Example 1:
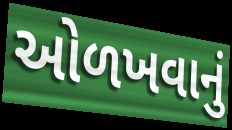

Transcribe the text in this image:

ઓળખવાનું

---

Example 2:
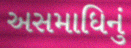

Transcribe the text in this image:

અસમાધિનું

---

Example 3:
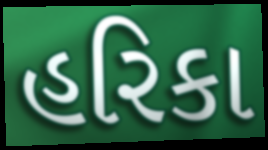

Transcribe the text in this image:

હરિકા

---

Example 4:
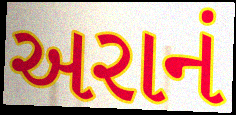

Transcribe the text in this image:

અરાનં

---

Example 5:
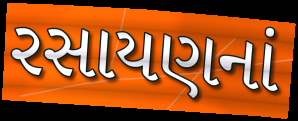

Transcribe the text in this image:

રસાયણનાં